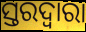
ସ୍ତରଦ୍ୱାରା